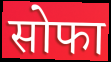
सोफा